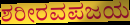
ಶರೀರವಪಜಯ